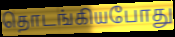
தொடங்கியபோது